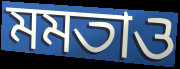
মমতাও